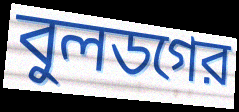
বুলডগের